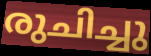
രുചിച്ചു